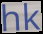
hk